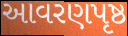
આવરણપૃષ્ઠ